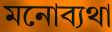
মনোব্যথা